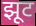
झूट